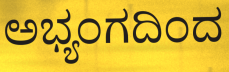
ಅಭ್ಯಂಗದಿಂದ